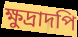
ক্ষুদ্রাদপি